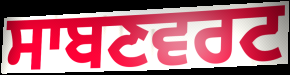
ਸਾਬਣਵਰਟ